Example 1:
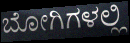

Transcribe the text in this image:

ಬೋಗಿಗಳಲ್ಲಿ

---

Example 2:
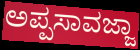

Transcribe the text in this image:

ಅಪ್ಪಸಾವಜ್ಜಾ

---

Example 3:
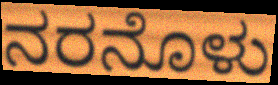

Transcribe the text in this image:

ನರನೊಳು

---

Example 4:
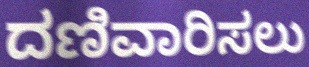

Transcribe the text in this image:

ದಣಿವಾರಿಸಲು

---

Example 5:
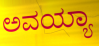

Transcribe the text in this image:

ಅವಯ್ಯಾ